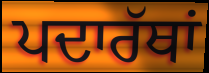
ਪਦਾਰੱਥਾਂ